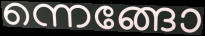
ന്നെങ്ങോ